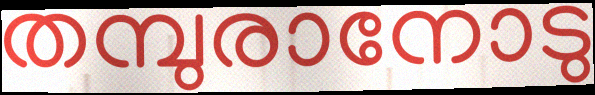
തമ്പുരാനോടു